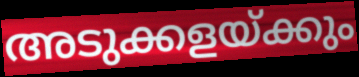
അടുക്കളയ്ക്കും